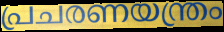
പ്രചരണയന്ത്രം